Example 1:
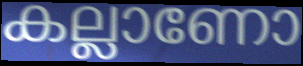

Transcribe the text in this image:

കല്ലാണോ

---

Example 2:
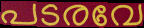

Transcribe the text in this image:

പടരവേ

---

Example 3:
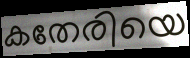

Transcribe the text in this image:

കതേരിയെ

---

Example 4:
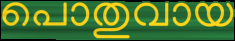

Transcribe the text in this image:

പൊതുവായ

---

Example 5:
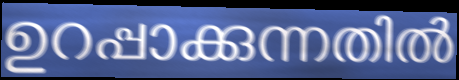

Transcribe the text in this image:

ഉറപ്പാക്കുന്നതിൽ